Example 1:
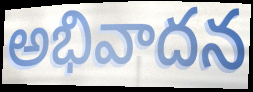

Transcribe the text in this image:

అభివాదన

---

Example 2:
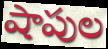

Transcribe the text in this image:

షాపుల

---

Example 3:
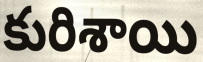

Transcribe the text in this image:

కురిశాయి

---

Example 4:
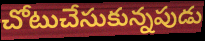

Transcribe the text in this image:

చోటుచేసుకున్నపుడు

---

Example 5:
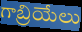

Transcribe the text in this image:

గాబ్రియేలు